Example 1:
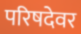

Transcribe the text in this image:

परिषदेवर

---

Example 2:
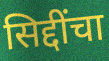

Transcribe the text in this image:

सिद्दींचा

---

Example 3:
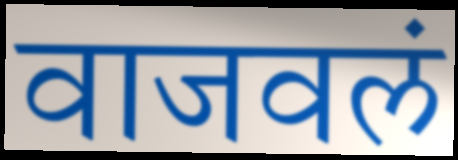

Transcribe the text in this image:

वाजवलं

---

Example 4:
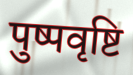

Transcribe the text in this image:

पुष्पवृष्टि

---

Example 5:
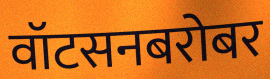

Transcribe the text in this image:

वॉटसनबरोबर